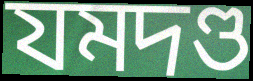
যমদণ্ড